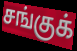
சங்குக்